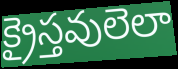
క్రైస్తవులెలా